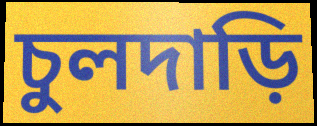
চুলদাড়ি